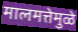
मालमत्तेमुळे